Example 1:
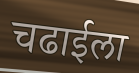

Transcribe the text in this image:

चढाईला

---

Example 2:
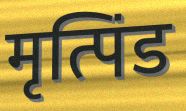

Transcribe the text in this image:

मृत्पिंड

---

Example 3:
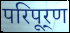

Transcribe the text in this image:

परिपूर्ण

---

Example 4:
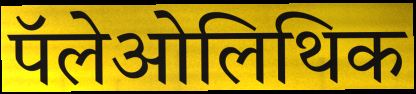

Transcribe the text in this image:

पॅलेओलिथिक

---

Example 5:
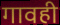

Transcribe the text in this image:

गावही